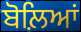
ਬੋਲ਼ਿਆਂ